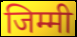
जिम्मी